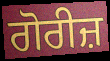
ਗੋਰੀਜ਼